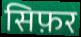
सिफ़र